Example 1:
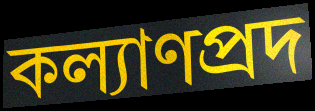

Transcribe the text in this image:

কল্যাণপ্রদ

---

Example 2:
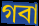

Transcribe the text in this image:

গবা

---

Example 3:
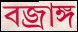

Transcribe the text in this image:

বজ্রাঙ্গ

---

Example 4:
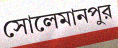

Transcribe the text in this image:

সোলেমানপুর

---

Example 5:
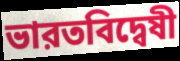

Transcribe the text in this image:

ভারতবিদ্বেষী